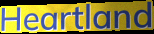
Heartland